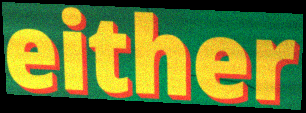
either